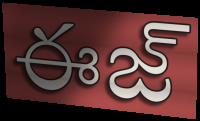
ఈజ్